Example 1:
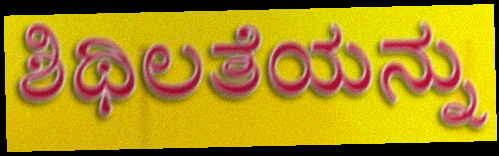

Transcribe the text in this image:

ಶಿಥಿಲತೆಯನ್ನು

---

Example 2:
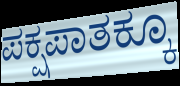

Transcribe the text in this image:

ಪಕ್ಷಪಾತಕ್ಕೂ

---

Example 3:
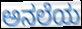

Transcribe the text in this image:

ಅನಲೆಯ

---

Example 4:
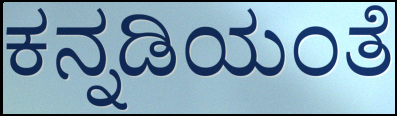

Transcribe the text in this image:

ಕನ್ನಡಿಯಂತೆ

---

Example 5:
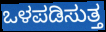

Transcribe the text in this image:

ಒಳಪಡಿಸುತ್ತ